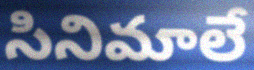
సినిమాలే